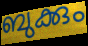
ബുക്കും